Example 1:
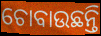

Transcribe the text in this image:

ଚୋବାଉଛନ୍ତି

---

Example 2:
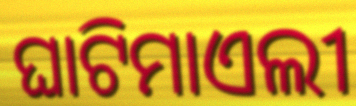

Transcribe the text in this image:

ଘାଟିମାଏଲୀ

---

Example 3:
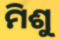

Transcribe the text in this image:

ମିଶୁ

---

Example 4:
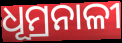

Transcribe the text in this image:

ଧୂମ୍ରନାଳୀ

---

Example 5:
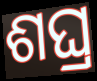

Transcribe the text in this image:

ଶଘ୍ର